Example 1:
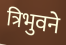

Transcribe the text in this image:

त्रिभुवने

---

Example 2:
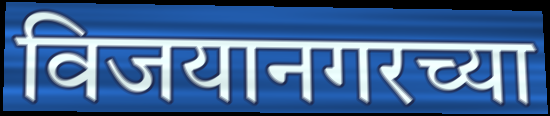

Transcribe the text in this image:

विजयानगरच्या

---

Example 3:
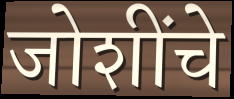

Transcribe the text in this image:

जोशींचे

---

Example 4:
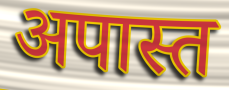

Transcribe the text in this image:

अपास्त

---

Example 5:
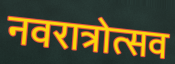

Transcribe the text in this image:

नवरात्रोत्सव